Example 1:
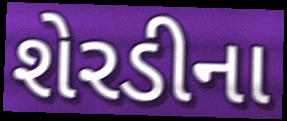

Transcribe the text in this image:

શેરડીના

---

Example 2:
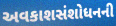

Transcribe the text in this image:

અવકાશસંશોધનની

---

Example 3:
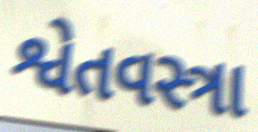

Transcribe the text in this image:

શ્વેતવસ્ત્રા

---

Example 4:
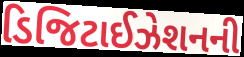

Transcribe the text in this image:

ડિજિટાઈઝેશનની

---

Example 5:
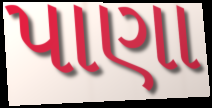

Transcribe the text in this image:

પાણા